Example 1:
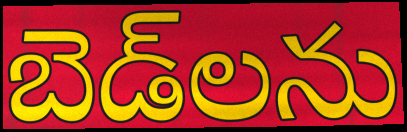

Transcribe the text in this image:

బెడ్‌లను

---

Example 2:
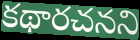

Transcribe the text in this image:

కథారచనని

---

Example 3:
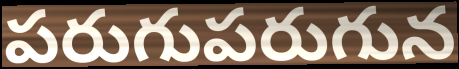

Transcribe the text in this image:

పరుగుపరుగున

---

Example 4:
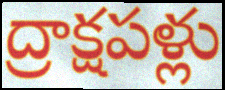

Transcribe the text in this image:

ద్రాక్షపళ్లు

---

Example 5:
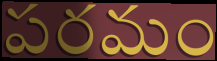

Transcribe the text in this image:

పరమం